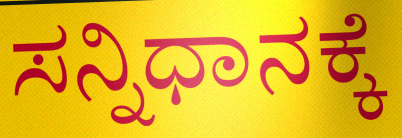
ಸನ್ನಿಧಾನಕ್ಕೆ